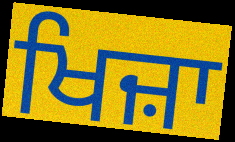
ਖਿਜ਼ਾ